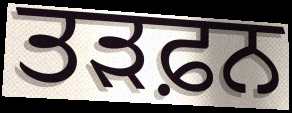
ਤੜਫ਼ਨ